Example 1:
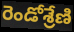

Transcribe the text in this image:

రెండోశ్రేణి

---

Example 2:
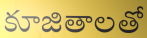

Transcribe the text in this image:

కూజితాలతో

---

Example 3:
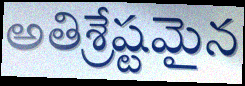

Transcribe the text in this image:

అతిశ్రేష్టమైన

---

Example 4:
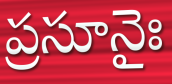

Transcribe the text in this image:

ప్రసూనైః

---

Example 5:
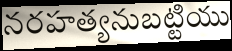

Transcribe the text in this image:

నరహత్యనుబట్టియు